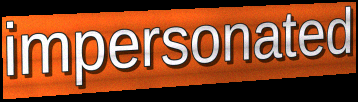
impersonated